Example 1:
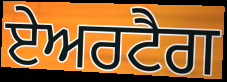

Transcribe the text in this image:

ਏਅਰਟੈਗ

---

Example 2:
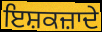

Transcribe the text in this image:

ਇਸ਼ਕਜ਼ਾਦੇ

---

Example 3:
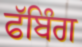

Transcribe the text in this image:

ਫੱਬਿੰਗ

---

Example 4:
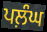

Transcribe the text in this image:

ਪਲ਼ੰਘ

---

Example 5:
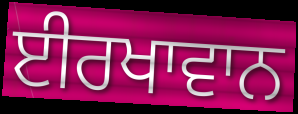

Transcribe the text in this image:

ਈਰਖਾਵਾਨ